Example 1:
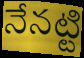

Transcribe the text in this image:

నేనట్టి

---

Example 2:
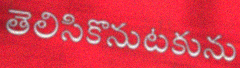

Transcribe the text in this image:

తెలిసికొనుటకును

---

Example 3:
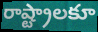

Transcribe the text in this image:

రాష్ట్రాలకూ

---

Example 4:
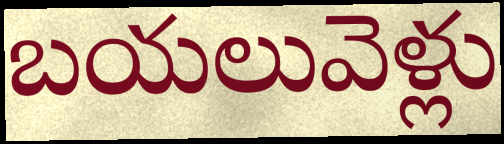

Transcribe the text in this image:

బయలువెళ్లు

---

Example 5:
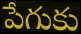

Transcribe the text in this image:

పేగుకు